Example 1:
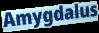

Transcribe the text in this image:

Amygdalus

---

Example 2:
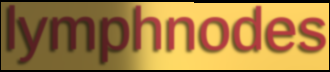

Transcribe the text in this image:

lymphnodes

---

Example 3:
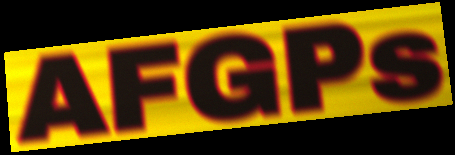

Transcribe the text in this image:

AFGPs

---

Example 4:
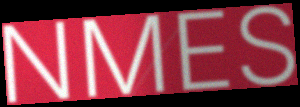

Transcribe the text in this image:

NMES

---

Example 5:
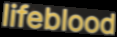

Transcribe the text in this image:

lifeblood